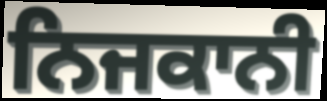
ਨਿਜਕਾਨੀ